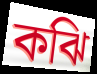
কঝি